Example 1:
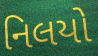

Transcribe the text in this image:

નિલયો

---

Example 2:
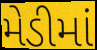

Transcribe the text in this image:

મેડીમાં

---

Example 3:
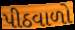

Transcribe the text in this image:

પીઠવાળો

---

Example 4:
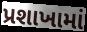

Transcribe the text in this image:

પ્રશાખામાં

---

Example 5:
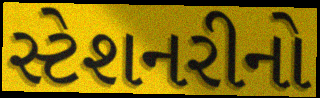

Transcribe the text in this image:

સ્ટેશનરીનો